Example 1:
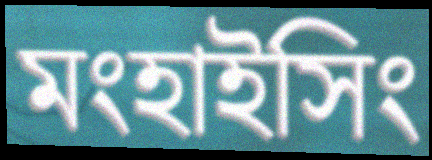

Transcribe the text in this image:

মংহাইসিং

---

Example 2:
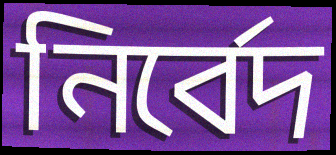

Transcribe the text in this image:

নির্বেদ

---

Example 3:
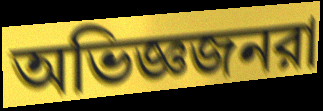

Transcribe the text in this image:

অভিজ্ঞজনরা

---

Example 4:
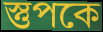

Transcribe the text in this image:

স্তুপকে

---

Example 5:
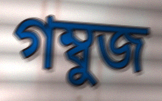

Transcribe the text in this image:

গম্বুজ